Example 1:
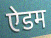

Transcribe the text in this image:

ऐडम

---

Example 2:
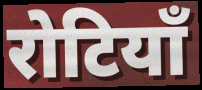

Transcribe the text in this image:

रोटियाँ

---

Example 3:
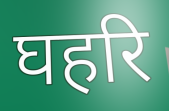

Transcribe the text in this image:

घहरि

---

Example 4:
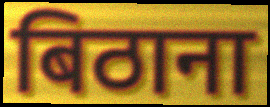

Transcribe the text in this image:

बिठाना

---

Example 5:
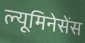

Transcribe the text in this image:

ल्यूमिनेसेंस